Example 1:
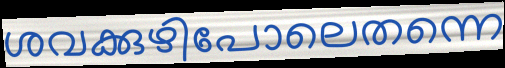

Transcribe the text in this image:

ശവക്കുഴിപോലെതന്നെ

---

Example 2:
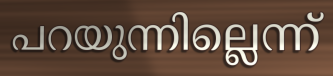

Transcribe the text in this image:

പറയുന്നില്ലെന്ന്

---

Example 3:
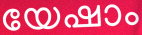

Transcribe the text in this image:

യേഷാം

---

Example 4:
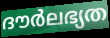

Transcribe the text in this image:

ദൗർലഭ്യത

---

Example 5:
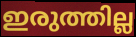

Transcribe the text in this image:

ഇരുത്തില്ല